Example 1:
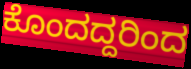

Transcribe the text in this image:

ಕೊಂದದ್ದರಿಂದ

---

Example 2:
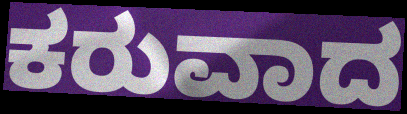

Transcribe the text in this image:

ಕರುವಾದ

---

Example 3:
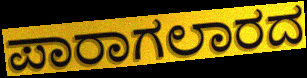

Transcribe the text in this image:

ಪಾರಾಗಲಾರದ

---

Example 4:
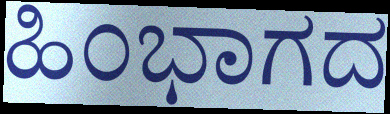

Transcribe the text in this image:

ಹಿಂಭಾಗದ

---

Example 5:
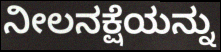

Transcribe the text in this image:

ನೀಲನಕ್ಷೆಯನ್ನು